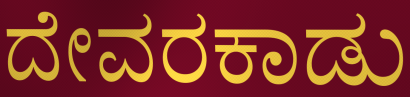
ದೇವರಕಾಡು